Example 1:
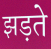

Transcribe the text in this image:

झड़ते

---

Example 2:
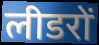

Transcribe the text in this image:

लीडरों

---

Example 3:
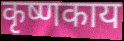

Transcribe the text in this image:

कृष्णकाय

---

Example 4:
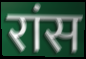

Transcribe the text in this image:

रांस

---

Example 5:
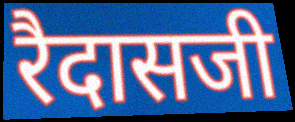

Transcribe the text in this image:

रैदासजी